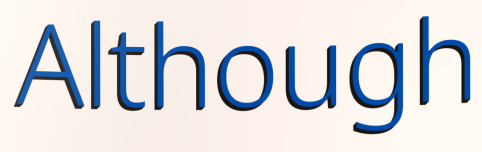
Although